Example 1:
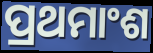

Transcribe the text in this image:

ପ୍ରଥମାଂଶ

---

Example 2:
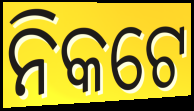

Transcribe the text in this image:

ନିକଟେ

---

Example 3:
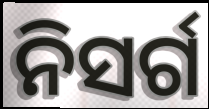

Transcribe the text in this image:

ନିସର୍ଗ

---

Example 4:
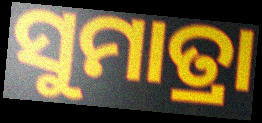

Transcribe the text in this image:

ସୁମାତ୍ରା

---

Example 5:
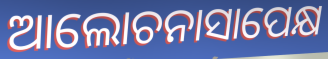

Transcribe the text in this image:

ଆଲୋଚନାସାପେକ୍ଷ